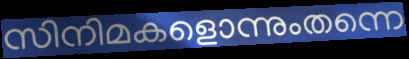
സിനിമകളൊന്നുംതന്നെ